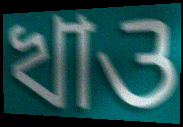
খাও